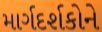
માર્ગદર્શકોને